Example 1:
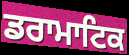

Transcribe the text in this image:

ਡਰਾਮਾਟਿਕ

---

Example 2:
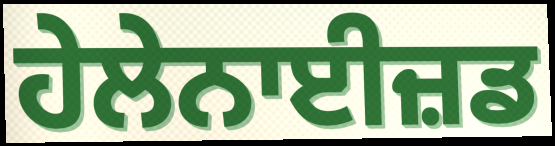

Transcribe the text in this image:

ਹੇਲੇਨਾਈਜ਼ਡ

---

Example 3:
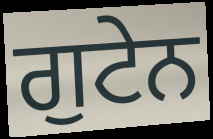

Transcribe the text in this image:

ਗੁਟੇਨ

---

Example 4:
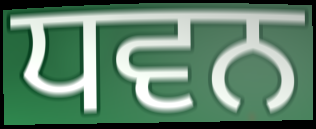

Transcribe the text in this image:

ਧਵਨ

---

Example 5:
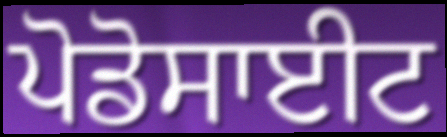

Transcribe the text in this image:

ਪੋਡੋਸਾਈਟ